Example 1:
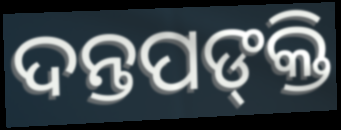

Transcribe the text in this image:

ଦନ୍ତପଙ୍‍କ୍ତି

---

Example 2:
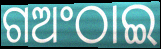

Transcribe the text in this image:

ଗଅଂଠାଇ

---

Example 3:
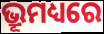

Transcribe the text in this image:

ଭ୍ରୂମଧ୍ୟରେ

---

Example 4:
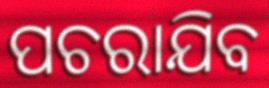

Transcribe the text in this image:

ପଚରାଯିବ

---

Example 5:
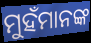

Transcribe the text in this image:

ମୁହଁମାନଙ୍କ